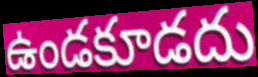
ఉండకూడదు